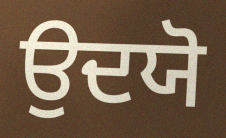
ਉਦਯੋ